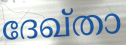
ദേഖ്താ